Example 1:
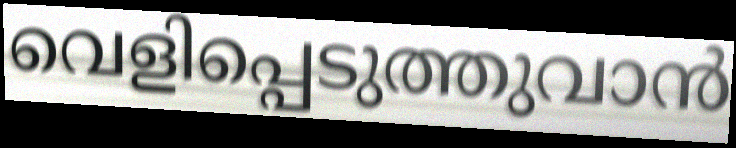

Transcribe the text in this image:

വെളിപ്പെടുത്തുവാൻ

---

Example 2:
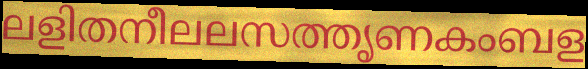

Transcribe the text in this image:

ലളിതനീലലസത്തൃണകംബള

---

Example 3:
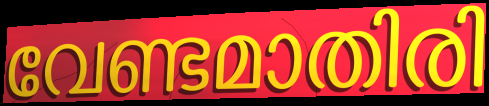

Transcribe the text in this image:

വേണ്ടമാതിരി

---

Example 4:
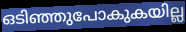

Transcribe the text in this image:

ഒടിഞ്ഞുപോകുകയില്ല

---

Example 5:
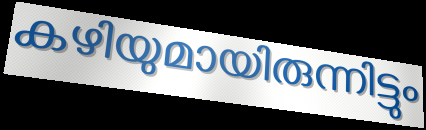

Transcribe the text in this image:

കഴിയുമായിരുന്നിട്ടും